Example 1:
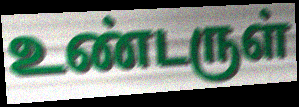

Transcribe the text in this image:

உண்டருள்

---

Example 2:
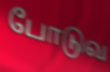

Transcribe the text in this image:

போடுவ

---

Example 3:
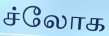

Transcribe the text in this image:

ச்லோக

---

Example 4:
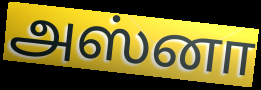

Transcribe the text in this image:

அஸ்னா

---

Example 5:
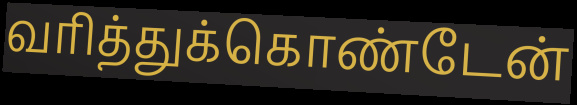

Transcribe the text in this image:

வரித்துக்கொண்டேன்